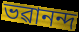
ভৱানন্দ